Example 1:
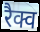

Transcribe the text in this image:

रैक्व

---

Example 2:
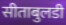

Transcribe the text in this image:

सीताबुलडी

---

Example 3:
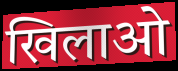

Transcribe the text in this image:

खिलाओ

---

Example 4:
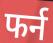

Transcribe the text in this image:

फर्न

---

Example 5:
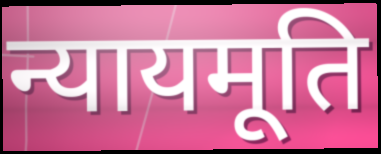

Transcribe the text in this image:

न्यायमूति